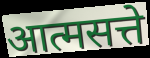
आत्मसत्ते